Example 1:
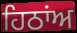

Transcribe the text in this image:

ਹਿਠਾਂਅ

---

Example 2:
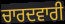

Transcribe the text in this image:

ਚਾਰਦਵਾਰੀ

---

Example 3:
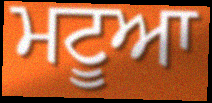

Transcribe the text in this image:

ਮਟੂਆ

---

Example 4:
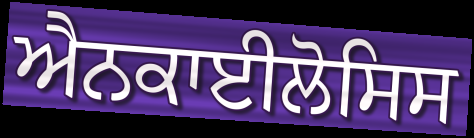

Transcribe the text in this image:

ਐਨਕਾਈਲੋਸਿਸ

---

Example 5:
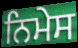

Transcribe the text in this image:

ਨਿਮੇਸ